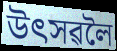
উৎসৱলৈ